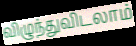
விழுந்துவிடலாம்